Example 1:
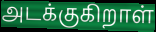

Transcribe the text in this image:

அடக்குகிறாள்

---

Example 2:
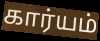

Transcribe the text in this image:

கார்யம்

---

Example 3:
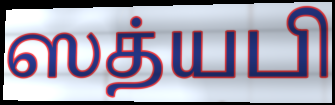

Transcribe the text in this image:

ஸத்யபி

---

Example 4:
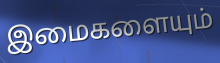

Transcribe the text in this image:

இமைகளையும்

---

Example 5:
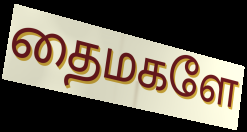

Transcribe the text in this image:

தைமகளே